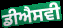
ਡੀਐਸਵੀ